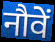
नौवें